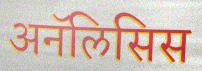
अनॅलिसिस